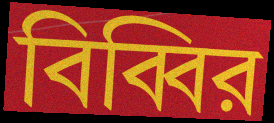
বিব্বির